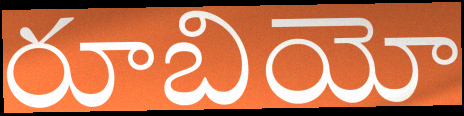
రూబియో